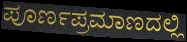
ಪೂರ್ಣಪ್ರಮಾಣದಲ್ಲಿ